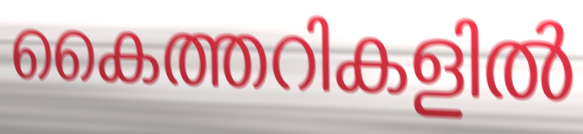
കൈത്തറികളിൽ